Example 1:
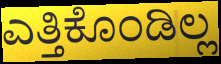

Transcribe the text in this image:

ಎತ್ತಿಕೊಂಡಿಲ್ಲ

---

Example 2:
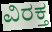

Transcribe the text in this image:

ವಿರಕ್ತ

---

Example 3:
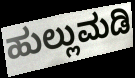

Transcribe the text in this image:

ಹುಲ್ಲುಮಡಿ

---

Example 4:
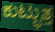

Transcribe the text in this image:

ಕುಟ್ಟುತ್ತ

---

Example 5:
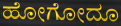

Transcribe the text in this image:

ಹೋಗೋದೂ